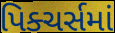
પિક્ચર્સમાં